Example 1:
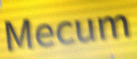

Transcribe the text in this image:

Mecum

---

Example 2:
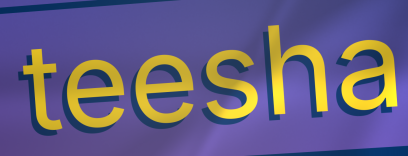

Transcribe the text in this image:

teesha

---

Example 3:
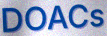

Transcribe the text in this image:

DOACs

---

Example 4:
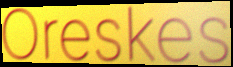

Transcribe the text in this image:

Oreskes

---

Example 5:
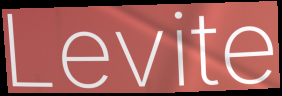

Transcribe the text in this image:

Levite